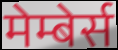
मेम्बेर्स